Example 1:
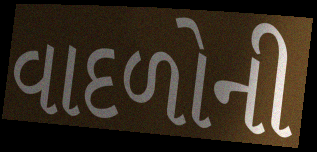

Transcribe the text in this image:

વાદળોની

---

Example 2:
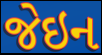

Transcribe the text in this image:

જેઇન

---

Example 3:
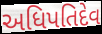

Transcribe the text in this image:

અધિપતિદેવ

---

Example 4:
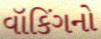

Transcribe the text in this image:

વૉકિંગનો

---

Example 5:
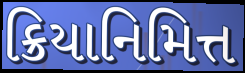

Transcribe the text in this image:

ક્રિયાનિમિત્ત